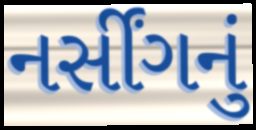
નર્સીંગનું